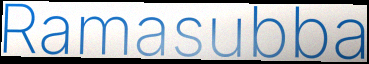
Ramasubba